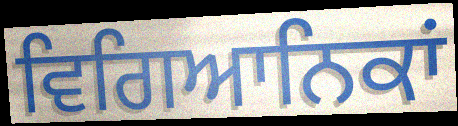
ਵਿਗਿਆਨਿਕਾਂ